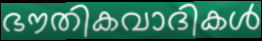
ഭൗതികവാദികൾ